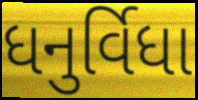
ધનુર્વિધા